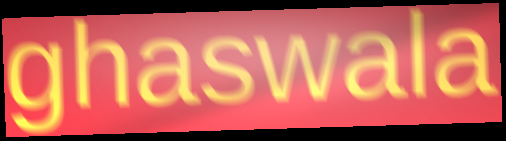
ghaswala